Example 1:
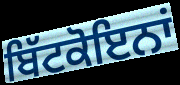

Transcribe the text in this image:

ਬਿੱਟਕੋਇਨਾਂ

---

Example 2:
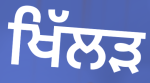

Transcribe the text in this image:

ਖਿੱਲੜ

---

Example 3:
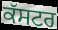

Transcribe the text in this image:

ਕੱਸਟਰ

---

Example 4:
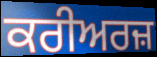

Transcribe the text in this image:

ਕਰੀਅਰਜ਼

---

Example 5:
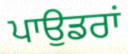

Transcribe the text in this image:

ਪਾਉਡਰਾਂ